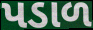
પડાળ